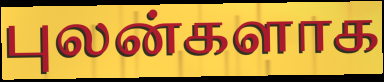
புலன்களாக